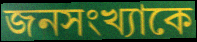
জনসংখ্যাকে